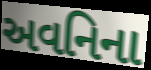
અવનિના